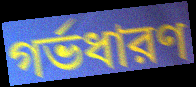
গর্ভধারণ